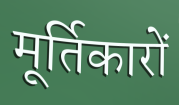
मूर्तिकारों